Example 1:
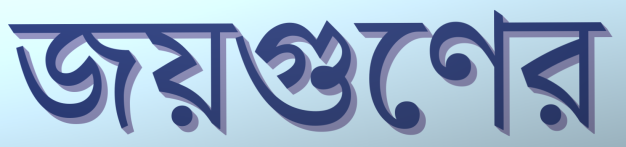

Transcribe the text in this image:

জয়গুণের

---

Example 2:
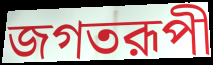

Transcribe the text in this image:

জগতরূপী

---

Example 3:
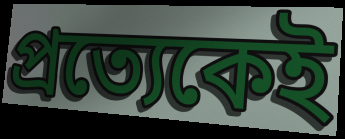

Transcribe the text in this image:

প্রত্যেকেই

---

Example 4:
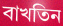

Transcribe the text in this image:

বাখতিন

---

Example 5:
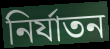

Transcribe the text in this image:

নির্যাতন